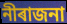
নীৰাজনা